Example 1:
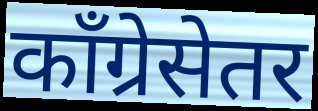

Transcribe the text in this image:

काँग्रेसेतर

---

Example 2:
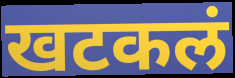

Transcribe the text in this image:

खटकलं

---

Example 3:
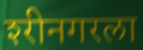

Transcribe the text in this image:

श्रीनगरला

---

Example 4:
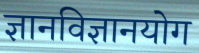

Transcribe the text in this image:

ज्ञानविज्ञानयोग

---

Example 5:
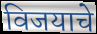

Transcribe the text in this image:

विजयाचे